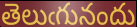
తెలుఁగునందు